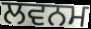
ਲਵਨਮ